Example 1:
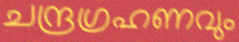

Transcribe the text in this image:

ചന്ദ്രഗ്രഹണവും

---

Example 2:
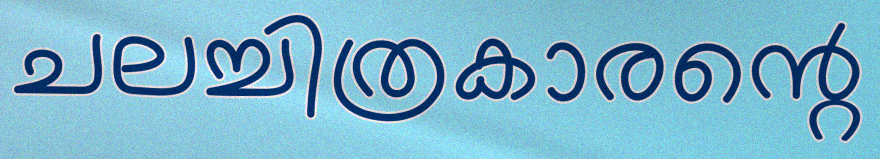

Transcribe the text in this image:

ചലച്ചിത്രകാരന്റെ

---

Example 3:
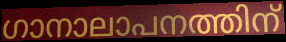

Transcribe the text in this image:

ഗാനാലാപനത്തിന്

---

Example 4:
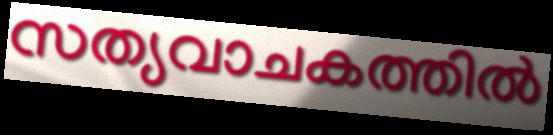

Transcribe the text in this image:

സത്യവാചകത്തിൽ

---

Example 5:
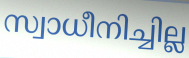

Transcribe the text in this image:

സ്വാധീനിച്ചില്ല